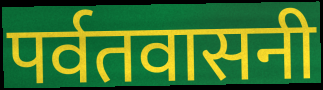
पर्वतवासनी